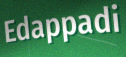
Edappadi